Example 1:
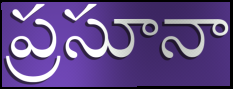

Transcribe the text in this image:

ప్రసూనా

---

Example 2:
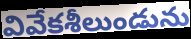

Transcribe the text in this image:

వివేకశీలుండును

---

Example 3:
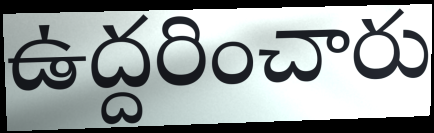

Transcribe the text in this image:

ఉద్దరించారు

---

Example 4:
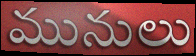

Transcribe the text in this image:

మునులు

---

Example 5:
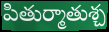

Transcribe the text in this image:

పితుర్మాతుశ్చ